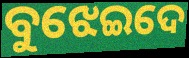
ବୁଝେଇଦେ